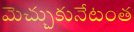
మెచ్చుకునేటంత